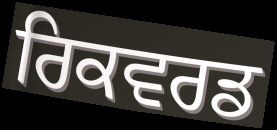
ਰਿਕਵਰਡ